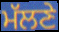
ਮੱਲਣੇ